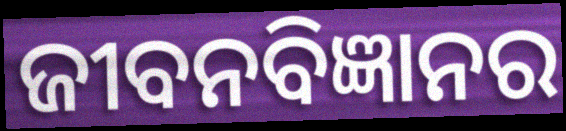
ଜୀବନବିଜ୍ଞାନର